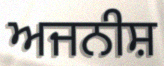
ਅਜਨੀਸ਼